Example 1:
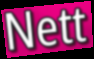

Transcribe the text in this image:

Nett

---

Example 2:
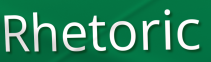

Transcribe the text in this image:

Rhetoric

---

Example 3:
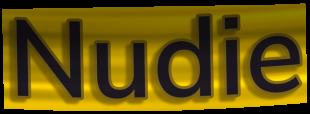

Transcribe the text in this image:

Nudie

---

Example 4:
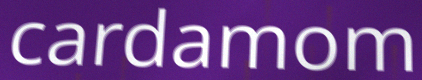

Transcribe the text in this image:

cardamom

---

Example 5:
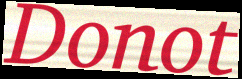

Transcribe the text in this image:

Donot